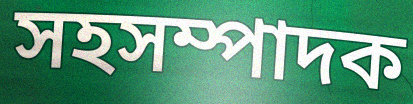
সহসম্পাদক